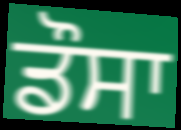
ਡੌਸਾ